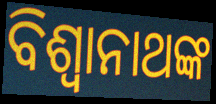
ବିଶ୍ୱାନାଥଙ୍କ